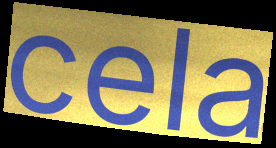
cela